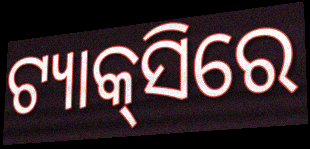
ଟ୍ୟାକ୍‍ସିରେ